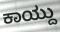
ಕಾಯ್ದು